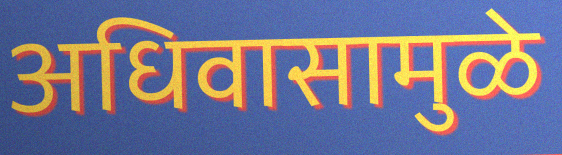
अधिवासामुळे